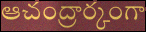
ఆచంద్రార్కంగా